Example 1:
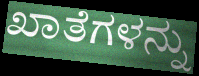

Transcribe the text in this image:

ಖಾತೆಗಳನ್ನು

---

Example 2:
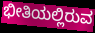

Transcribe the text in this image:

ಭೀತಿಯಲ್ಲಿರುವ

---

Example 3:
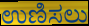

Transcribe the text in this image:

ಉಣಿಸಲು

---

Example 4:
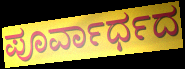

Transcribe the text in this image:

ಪೂರ್ವಾರ್ಧದ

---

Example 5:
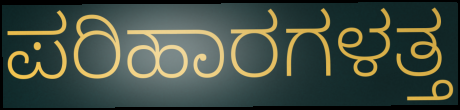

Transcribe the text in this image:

ಪರಿಹಾರಗಳತ್ತ